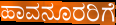
ಹಾವನೂರರಿಗೆ